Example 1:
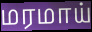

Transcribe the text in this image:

மரமாய்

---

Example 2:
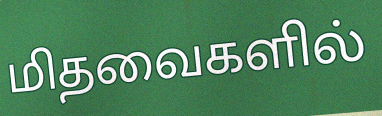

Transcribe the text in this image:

மிதவைகளில்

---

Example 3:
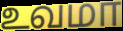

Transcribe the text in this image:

உவமா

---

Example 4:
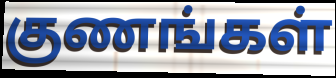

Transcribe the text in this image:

குணங்கள்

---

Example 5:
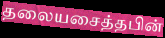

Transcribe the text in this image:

தலையசைத்தபின்